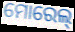
ମୋରେଲ୍